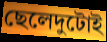
ছেলেদুটোই